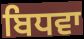
ਬਿਧਵਾ